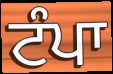
ਟੰਪਾ